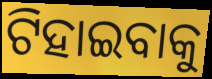
ଟିହାଇବାକୁ